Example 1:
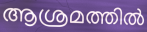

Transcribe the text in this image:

ആശ്രമത്തിൽ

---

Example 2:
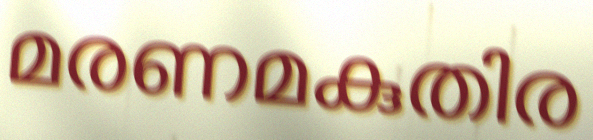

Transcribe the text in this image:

മരണമകുതിര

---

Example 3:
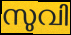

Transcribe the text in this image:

സുവി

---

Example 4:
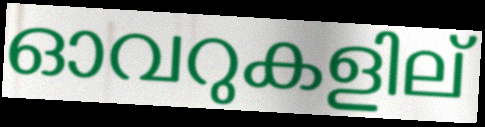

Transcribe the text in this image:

ഓവറുകളില്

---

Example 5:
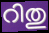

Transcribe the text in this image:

റിതു